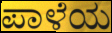
ಪಾಳೆಯ